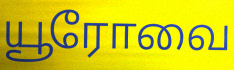
யூரோவை